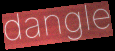
dangle